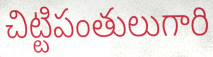
చిట్టిపంతులుగారి